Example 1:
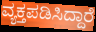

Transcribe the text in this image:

ವ್ಯಕ್ತಪಡಿಸಿದ್ದಾರೆ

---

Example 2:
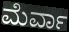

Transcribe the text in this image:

ಮೆರ್ವಾ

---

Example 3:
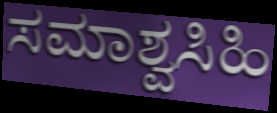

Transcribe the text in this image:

ಸಮಾಶ್ವಸಿಹಿ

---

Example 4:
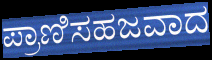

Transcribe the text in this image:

ಪ್ರಾಣಿಸಹಜವಾದ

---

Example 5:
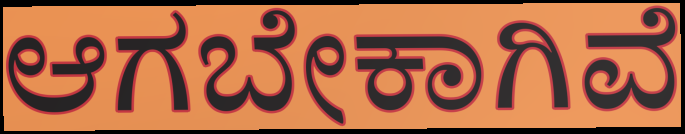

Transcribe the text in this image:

ಆಗಬೇಕಾಗಿವೆ